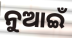
ନୁଆଇଁ